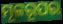
ମୂଳରୂପର